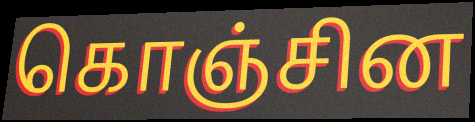
கொஞ்சின